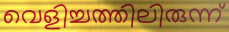
വെളിച്ചത്തിലിരുന്ന്